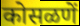
कोसळणें